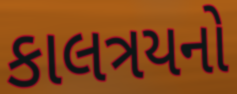
કાલત્રયનો